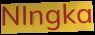
NIngka